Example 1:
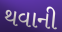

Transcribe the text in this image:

થવાની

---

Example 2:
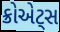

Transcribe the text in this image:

ક્રોએટ્સ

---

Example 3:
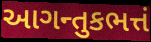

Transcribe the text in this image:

આગન્તુકભત્તં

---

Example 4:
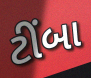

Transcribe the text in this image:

ટીંબા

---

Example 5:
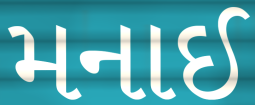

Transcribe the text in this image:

મનાઈ